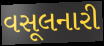
વસૂલનારી